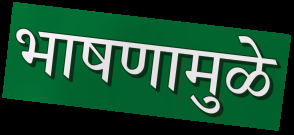
भाषणामुळे